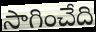
సాగించేది